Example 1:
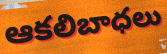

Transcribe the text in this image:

ఆకలిబాధలు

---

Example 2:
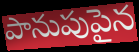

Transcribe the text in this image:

పానుపుపైన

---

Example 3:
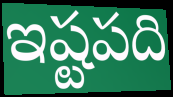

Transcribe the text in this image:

ఇష్టపది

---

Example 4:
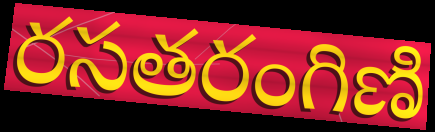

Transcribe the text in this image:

రసతరంగిణి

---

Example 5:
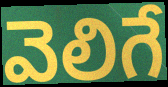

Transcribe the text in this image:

వెలిగే